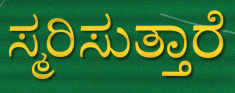
ಸ್ಮರಿಸುತ್ತಾರೆ